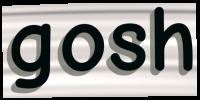
gosh